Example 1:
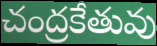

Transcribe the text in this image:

చంద్రకేతువు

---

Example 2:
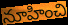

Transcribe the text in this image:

నూహించి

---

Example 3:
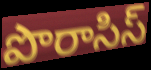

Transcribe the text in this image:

పొరాసిస్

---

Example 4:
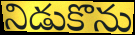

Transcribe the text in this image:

నిడుకొను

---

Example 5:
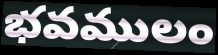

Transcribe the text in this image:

భవములం